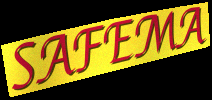
SAFEMA